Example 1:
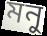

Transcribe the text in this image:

মনু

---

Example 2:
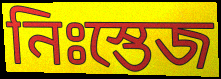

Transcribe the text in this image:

নিঃস্তেজ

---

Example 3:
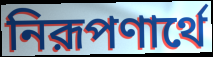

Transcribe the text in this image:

নিরূপণার্থে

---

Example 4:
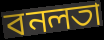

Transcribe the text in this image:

বনলতা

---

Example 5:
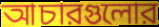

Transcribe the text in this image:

আচারগুলোর